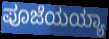
ಪೂಜೆಯಯ್ಯಾ